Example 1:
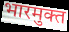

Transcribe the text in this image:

भारमुक्त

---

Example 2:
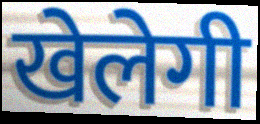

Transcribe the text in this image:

खेलेगी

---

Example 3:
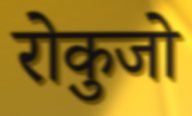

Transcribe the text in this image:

रोकुजो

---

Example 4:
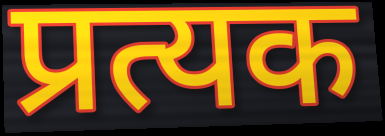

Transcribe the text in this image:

प्रत्यक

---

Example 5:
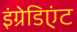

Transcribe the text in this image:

इंग्रेडिएंट